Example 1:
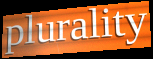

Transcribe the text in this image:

plurality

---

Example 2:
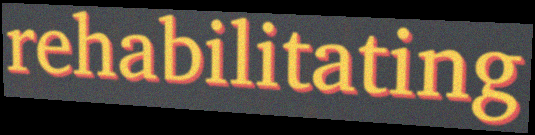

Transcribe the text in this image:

rehabilitating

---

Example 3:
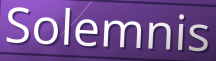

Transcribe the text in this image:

Solemnis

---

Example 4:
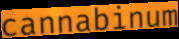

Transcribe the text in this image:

cannabinum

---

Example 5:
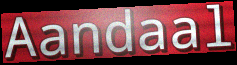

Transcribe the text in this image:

Aandaal